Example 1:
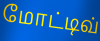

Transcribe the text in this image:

மோட்டிவ்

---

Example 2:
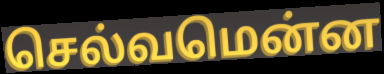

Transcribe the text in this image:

செல்வமென்ன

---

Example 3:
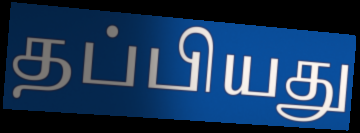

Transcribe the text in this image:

தப்பியது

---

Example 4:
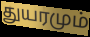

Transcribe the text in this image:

துயரமும்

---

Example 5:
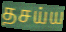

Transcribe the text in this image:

தசய்ய